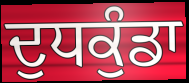
ਦੁਧਕੁੰਡਾ